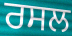
ਰਸਲ